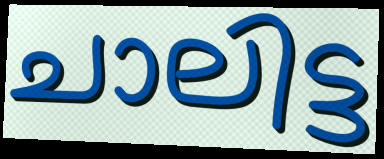
ചാലിട്ട